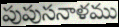
పుపుసనాళము